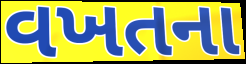
વખતના